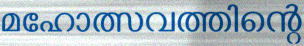
മഹോത്സവത്തിന്റെ